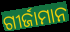
ଗୀର୍ଜାମାନ